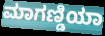
ಮಾಗಣ್ಡಿಯಾ